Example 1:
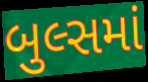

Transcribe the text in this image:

બુલ્સમાં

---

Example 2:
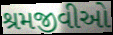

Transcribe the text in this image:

શ્રમજીવીઓ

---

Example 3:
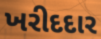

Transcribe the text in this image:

ખરીદદાર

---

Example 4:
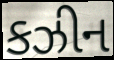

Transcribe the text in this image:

કઝીન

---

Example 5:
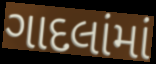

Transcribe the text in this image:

ગાદલાંમાં